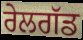
ਰੇਲਗੱਡ